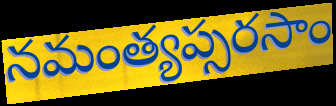
నమంత్యప్సరసాం